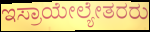
ಇಸ್ರಾಯೇಲ್ಯೇತರರು